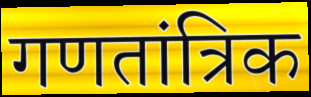
गणतांत्रिक